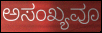
ಅಸಂಖ್ಯವೂ